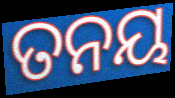
ତନୟ